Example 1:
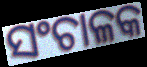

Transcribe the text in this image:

ସଂଚାଳକ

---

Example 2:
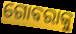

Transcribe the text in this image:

ଗୋବରାକୁ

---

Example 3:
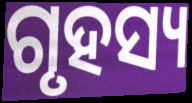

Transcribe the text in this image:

ଗୃହସ୍ୟ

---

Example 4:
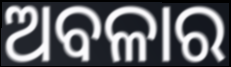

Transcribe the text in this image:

ଅବଳାର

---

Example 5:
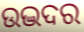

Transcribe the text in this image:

ଉଦ୍ଭଦର